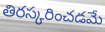
తిరస్కరించడమే